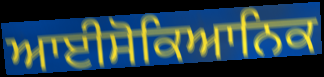
ਆਈਸੋਕਿਆਨਿਕ